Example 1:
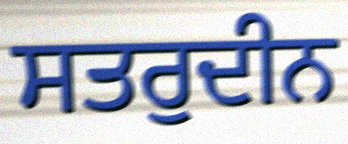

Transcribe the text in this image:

ਸਤਰੁਦੀਨ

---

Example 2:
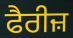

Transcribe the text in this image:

ਫੈਰੀਜ਼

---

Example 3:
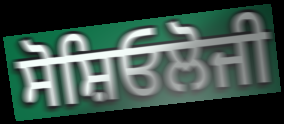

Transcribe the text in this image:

ਸੋਸ਼ਿਓਲੋਜੀ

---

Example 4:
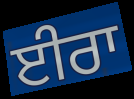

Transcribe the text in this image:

ਈਰਾ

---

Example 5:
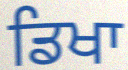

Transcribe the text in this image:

ਡਿਖਾ